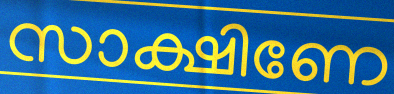
സാക്ഷിണേ